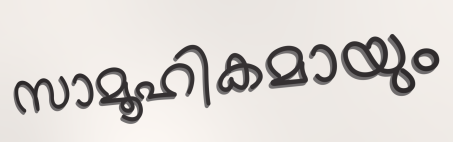
സാമൂഹികമായും